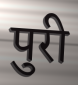
पुरी